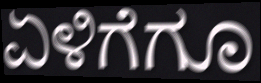
ಏಳಿಗೆಗೂ